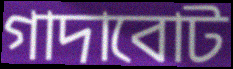
গাদাবোট